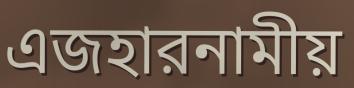
এজহারনামীয়